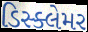
ડિસ્ક્લેમર